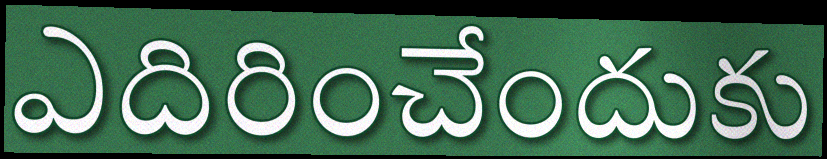
ఎదిరించేందుకు